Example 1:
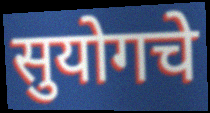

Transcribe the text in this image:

सुयोगचे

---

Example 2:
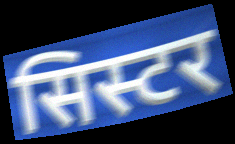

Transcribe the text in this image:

सिस्टर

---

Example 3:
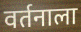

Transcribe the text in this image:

वर्तनाला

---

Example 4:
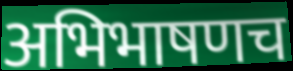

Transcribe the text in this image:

अभिभाषणच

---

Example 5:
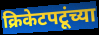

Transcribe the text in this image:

क्रिकेटपटूंच्या